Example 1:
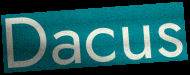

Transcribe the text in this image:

Dacus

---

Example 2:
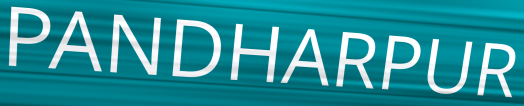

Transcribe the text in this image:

PANDHARPUR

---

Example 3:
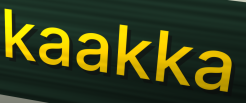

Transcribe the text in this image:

kaakka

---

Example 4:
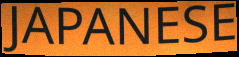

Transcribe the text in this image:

JAPANESE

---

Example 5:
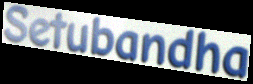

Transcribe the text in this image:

Setubandha